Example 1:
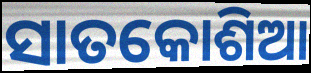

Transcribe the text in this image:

ସାତକୋଶିଆ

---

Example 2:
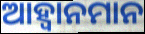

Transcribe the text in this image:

ଆହ୍ୱାନମାନ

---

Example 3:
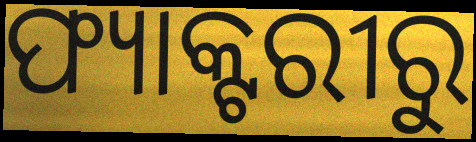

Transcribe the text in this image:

ଫ୍ୟାକ୍ଟରୀରୁ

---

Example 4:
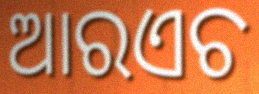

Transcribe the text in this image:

ଆରଏଚ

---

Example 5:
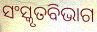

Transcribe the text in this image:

ସଂସ୍କୃତବିଭାଗ